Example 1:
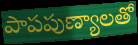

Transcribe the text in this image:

పాపపుణ్యాలతో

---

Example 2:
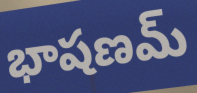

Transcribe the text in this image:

భాషణమ్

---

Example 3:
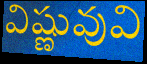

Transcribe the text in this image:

విష్ణువువి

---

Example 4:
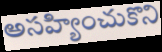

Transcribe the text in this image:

అసహ్యించుకొని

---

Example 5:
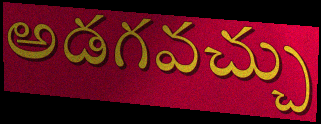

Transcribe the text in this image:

అడగవచ్చు